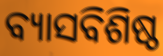
ବ୍ୟାସବିଶିଷ୍ଠ